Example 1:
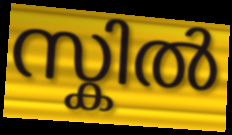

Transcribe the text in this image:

സ്കിൽ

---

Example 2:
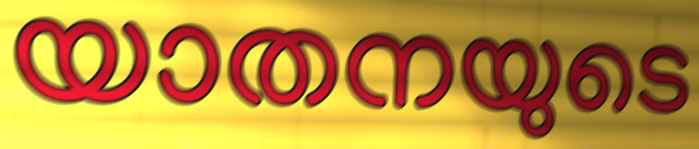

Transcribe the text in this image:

യാതനയുടെ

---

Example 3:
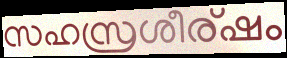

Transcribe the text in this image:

സഹസ്രശീര്ഷം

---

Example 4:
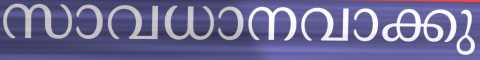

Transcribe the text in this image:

സാവധാനവാക്കു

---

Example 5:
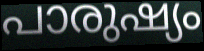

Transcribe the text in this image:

പാരുഷ്യം